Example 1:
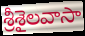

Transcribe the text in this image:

శ్రీశైలవాసా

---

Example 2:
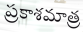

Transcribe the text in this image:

ప్రకాశమాత్ర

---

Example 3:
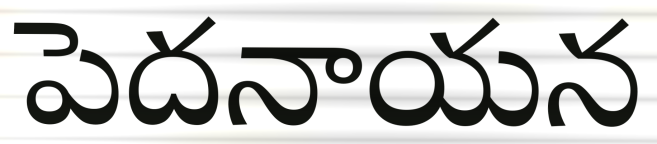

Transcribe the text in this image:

పెదనాయన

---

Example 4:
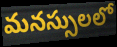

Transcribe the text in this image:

మనస్సులలో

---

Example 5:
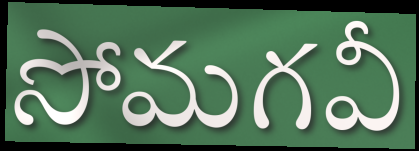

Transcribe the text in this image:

సోమగవీ